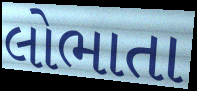
લોભાતા